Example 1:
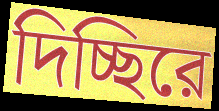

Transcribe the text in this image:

দিচ্ছিরে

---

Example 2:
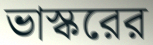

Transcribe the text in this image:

ভাস্করের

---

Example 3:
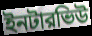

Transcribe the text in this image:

ইনটারভিউ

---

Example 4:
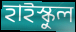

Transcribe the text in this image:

হাইস্কুল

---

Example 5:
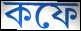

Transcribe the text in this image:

কফে